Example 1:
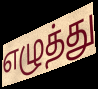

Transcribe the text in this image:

எழுத்து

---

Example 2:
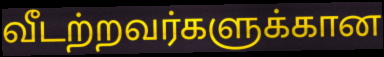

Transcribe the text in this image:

வீடற்றவர்களுக்கான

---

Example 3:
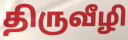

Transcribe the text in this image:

திருவீழி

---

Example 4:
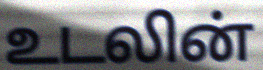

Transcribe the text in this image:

உடலின்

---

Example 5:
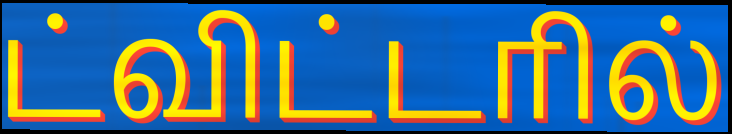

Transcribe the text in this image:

ட்விட்டரில்